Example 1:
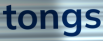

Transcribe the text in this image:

tongs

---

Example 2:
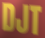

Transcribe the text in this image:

DJT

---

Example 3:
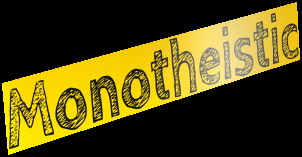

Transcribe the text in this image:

Monotheistic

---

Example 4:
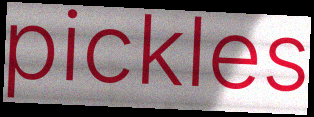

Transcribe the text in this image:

pickles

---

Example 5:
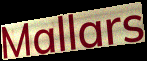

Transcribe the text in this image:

Mallars